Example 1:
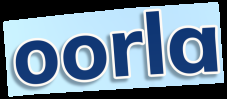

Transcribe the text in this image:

oorla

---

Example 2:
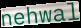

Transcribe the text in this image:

nehwal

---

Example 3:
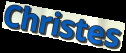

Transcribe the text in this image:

Christes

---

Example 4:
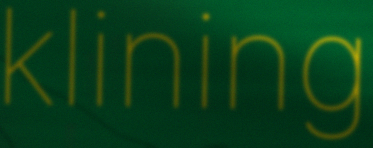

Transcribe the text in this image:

klining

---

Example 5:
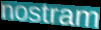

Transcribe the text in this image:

nostram